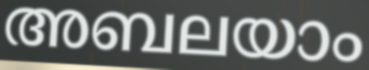
അബലയാം